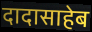
दादासाहेब